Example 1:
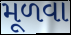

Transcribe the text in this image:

મૂળવા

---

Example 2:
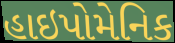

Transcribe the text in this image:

હાઇપોમેનિક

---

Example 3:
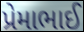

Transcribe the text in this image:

પ્રેમાભાઈ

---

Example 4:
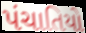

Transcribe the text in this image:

પંચાતિયો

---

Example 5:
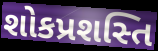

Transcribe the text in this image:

શોકપ્રશસ્તિ